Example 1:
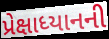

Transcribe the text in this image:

પ્રેક્ષાધ્યાનની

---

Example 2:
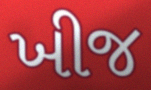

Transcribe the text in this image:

ખીજ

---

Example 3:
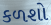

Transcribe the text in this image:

કળશો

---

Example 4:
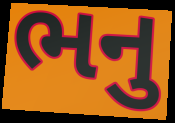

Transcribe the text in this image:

ભનુ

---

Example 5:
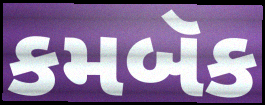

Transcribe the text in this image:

કમબૅક